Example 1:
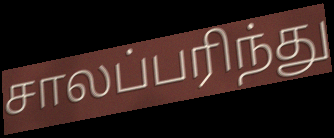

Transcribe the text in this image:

சாலப்பரிந்து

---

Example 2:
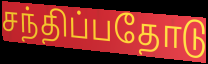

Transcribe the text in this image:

சந்திப்பதோடு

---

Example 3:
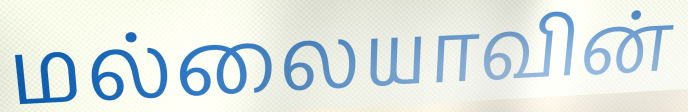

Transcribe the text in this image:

மல்லையாவின்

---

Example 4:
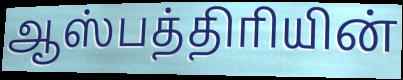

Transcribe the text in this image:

ஆஸ்பத்திரியின்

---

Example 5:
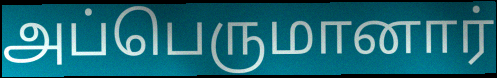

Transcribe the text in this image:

அப்பெருமானார்